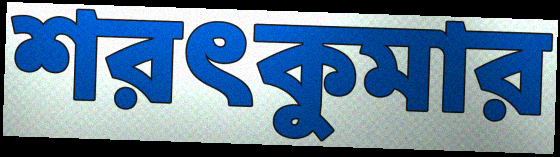
শরৎকুমার